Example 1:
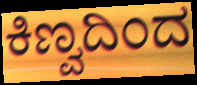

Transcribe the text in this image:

ಕಿಣ್ವದಿಂದ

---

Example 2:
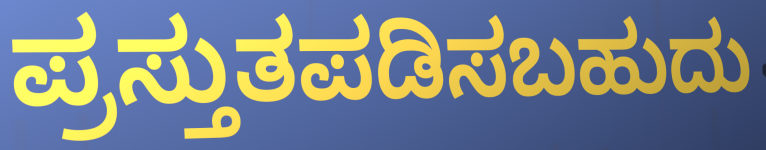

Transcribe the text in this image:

ಪ್ರಸ್ತುತಪಡಿಸಬಹುದು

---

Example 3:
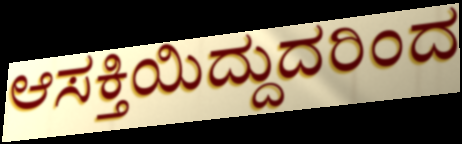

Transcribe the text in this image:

ಆಸಕ್ತಿಯಿದ್ದುದರಿಂದ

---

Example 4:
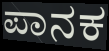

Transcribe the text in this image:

ಪಾನಕ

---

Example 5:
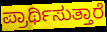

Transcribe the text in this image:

ಪ್ರಾರ್ಥಿಸುತ್ತಾರೆ